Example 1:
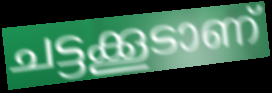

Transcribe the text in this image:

ചട്ടക്കൂടാണ്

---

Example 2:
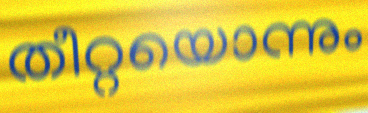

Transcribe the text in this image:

തീറ്റയൊന്നും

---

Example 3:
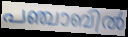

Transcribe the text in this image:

പഞ്ചാബിൽ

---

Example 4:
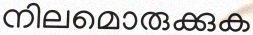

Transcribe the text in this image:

നിലമൊരുക്കുക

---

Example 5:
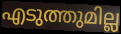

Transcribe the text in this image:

എടുത്തുമില്ല